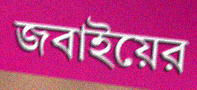
জবাইয়ের